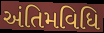
અંતિમવિધિ